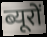
ब्यूरों